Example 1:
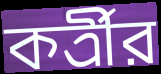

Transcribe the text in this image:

কর্ত্রীর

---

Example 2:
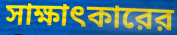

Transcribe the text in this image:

সাক্ষাৎকারের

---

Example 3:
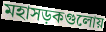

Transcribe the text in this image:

মহাসড়কগুলোয়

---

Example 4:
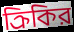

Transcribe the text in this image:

ক্রিকির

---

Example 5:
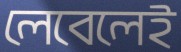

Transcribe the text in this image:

লেবেলেই